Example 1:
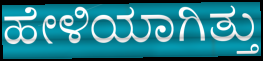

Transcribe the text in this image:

ಹೇಳಿಯಾಗಿತ್ತು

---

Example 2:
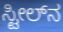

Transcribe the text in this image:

ಸ್ಟೀಲ್‌ನ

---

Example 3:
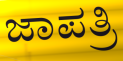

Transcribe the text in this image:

ಜಾಪತ್ರಿ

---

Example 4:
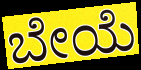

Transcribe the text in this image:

ಬೇಯೆ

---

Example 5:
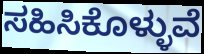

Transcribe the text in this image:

ಸಹಿಸಿಕೊಳ್ಳುವೆ